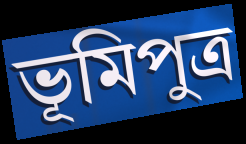
ভূমিপুত্ৰ